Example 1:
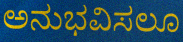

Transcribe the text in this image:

ಅನುಭವಿಸಲೂ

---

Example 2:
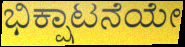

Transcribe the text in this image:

ಭಿಕ್ಷಾಟನೆಯೇ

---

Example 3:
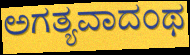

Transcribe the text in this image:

ಅಗತ್ಯವಾದಂಥ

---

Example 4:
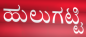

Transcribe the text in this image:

ಹುಲುಗಟ್ಟಿ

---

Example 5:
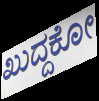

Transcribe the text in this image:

ಖುದ್ದಕೋ